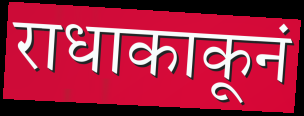
राधाकाकूनं